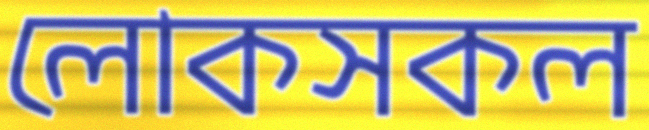
লোকসকল